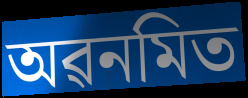
অৱনমিত